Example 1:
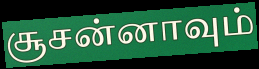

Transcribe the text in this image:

சூசன்னாவும்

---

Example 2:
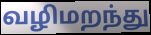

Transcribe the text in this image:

வழிமறந்து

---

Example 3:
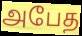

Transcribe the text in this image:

அபேத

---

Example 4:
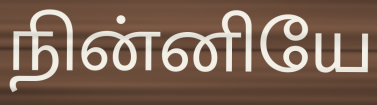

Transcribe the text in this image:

நின்னியே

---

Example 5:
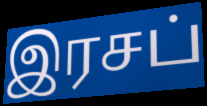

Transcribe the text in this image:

இரசப்